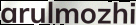
arulmozhi